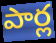
పార్ల